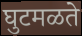
घुटमळते